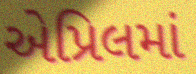
એપ્રિલમાં